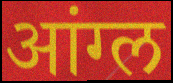
आंग्ल